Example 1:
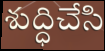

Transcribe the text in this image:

శుద్ధిచేసి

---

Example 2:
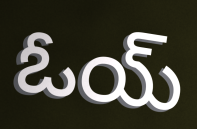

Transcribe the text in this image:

ఓయ్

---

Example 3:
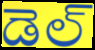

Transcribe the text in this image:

డెల్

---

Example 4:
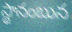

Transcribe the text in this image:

స్థానంబున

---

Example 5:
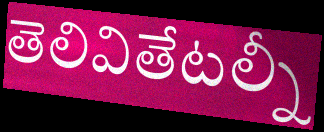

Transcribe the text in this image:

తెలివితేటల్నీ